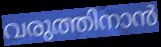
വരുത്തിനാൻ